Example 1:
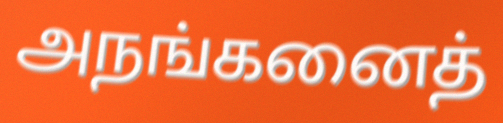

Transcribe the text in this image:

அநங்கனைத்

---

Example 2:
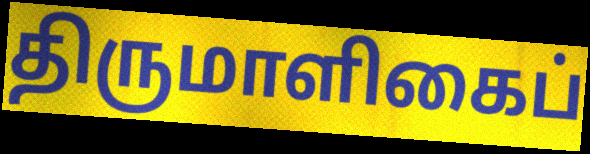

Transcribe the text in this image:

திருமாளிகைப்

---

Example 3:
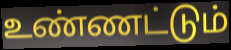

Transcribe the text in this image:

உண்ணட்டும்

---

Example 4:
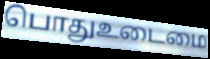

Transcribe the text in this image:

பொதுஉடைமை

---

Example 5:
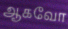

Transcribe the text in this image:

ஆகவோ